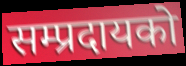
सम्प्रदायको